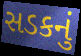
સડકનું